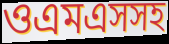
ওএমএসসহ